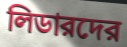
লিডারদের